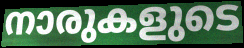
നാരുകളുടെ